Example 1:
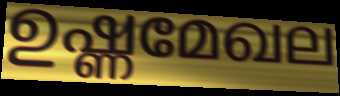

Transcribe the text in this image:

ഉഷ്ണമേഖല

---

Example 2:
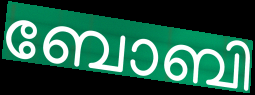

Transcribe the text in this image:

ബോബി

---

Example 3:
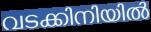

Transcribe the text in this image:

വടക്കിനിയിൽ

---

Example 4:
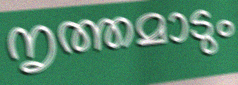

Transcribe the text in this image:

നൃത്തമാടും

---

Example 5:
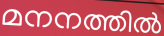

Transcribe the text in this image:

മനനത്തിൽ